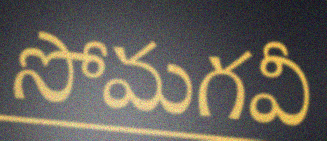
సోమగవీ